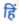
हिं